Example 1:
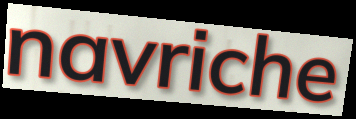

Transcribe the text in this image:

navriche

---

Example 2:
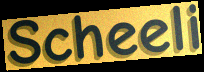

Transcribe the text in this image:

Scheeli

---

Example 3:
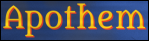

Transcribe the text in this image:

Apothem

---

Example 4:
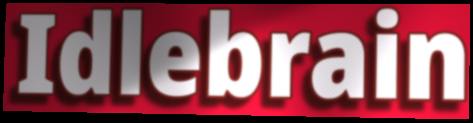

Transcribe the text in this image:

Idlebrain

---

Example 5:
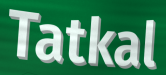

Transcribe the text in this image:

Tatkal